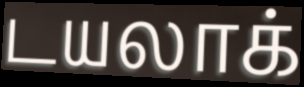
டயலாக்